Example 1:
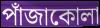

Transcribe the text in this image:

পাঁজাকোলা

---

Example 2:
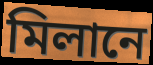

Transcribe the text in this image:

মিলানে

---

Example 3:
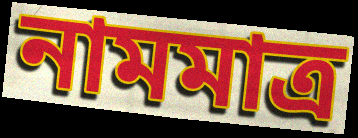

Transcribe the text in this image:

নামমাত্র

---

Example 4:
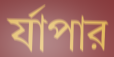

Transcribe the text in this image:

র্যাপার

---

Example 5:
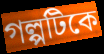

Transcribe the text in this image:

গল্পটিকে